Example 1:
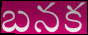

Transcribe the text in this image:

బనక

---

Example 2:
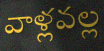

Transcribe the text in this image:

వాళ్లవల్ల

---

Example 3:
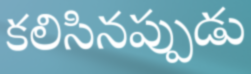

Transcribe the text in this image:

కలిసినప్పుడు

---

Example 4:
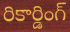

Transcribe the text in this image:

రికార్డింగ్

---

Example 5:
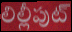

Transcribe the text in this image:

లిల్లీపుట్